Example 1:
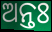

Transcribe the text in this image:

ଅନ୍ତଃ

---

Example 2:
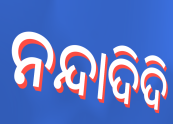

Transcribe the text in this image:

ନନ୍ଦାଦିଦି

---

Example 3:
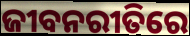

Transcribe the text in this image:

ଜୀବନରୀତିରେ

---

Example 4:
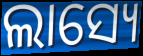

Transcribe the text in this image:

ଲାସ୍ୟେ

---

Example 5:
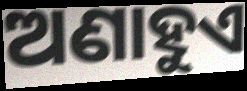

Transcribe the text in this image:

ଅଣାହୁଏ